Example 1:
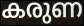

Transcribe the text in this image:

കരുണ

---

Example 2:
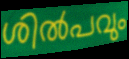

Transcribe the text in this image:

ശിൽപവും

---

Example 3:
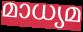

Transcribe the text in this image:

മാധ്യമ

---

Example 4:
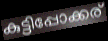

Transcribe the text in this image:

കുട്ടിപ്പോക്കര്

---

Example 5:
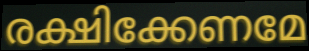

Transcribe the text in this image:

രക്ഷിക്കേണമേ